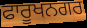
ਫਾਰੂਖਨਗਰ